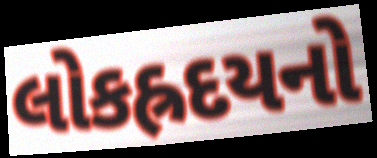
લોકહ્રદયનો